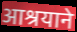
आश्रयाने